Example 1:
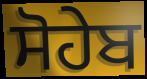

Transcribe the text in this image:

ਸੋਹੇਬ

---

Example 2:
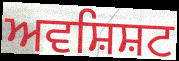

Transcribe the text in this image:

ਅਵਸ਼ਿਸ਼ਟ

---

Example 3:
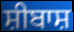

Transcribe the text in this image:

ਸ਼ੀਬਾਸ਼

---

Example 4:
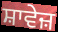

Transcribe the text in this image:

ਸ਼ਾਵੇਜ਼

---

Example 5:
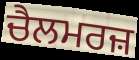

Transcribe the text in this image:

ਚੈਲਮਰਜ਼